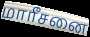
மாரீசனை